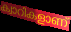
ക്വാറികളാണ്